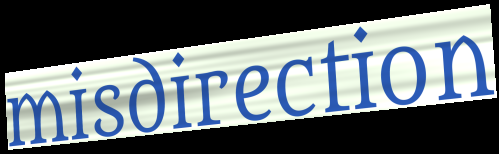
misdirection